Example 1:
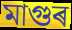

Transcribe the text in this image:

মাগুৰ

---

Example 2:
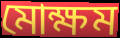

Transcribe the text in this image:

মোক্ষম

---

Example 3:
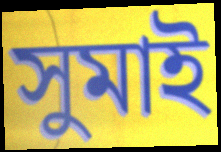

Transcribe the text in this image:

সুমাই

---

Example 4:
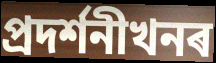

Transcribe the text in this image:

প্ৰদৰ্শনীখনৰ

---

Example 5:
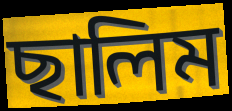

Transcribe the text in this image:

ছালিম